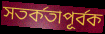
সতর্কতাপূর্বক